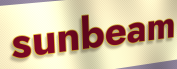
sunbeam